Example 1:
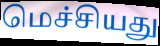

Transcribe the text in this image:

மெச்சியது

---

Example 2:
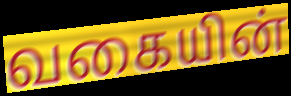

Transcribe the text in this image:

வகையின்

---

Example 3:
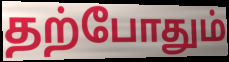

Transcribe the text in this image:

தற்போதும்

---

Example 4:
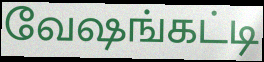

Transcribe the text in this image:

வேஷங்கட்டி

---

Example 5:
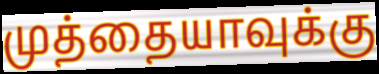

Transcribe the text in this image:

முத்தையாவுக்கு